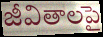
జీవితాలపై